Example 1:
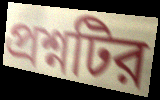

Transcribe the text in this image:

প্রশ্নটির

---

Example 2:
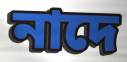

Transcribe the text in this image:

নাদে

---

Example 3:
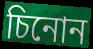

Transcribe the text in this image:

চিনোন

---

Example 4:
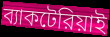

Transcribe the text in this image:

ব্যাকটেরিয়াই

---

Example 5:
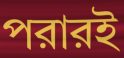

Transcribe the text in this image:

পরারই